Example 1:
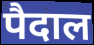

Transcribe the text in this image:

पैदाल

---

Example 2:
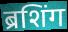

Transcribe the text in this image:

ब्रशिंग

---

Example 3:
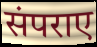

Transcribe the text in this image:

संपराए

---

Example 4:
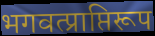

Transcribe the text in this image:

भगवत्प्राप्तिरूप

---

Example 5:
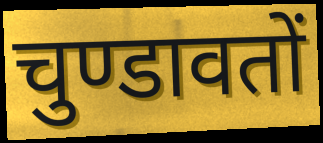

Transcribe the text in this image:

चुण्डावतों